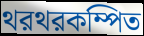
থরথরকম্পিত